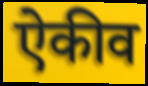
ऐकीव